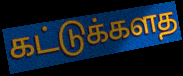
கட்டுக்களத